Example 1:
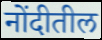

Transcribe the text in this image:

नोंदीतील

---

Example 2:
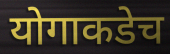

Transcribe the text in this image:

योगाकडेच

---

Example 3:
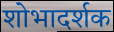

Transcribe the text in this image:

शोभादर्शक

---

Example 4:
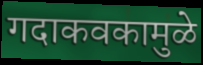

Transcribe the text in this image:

गदाकवकामुळे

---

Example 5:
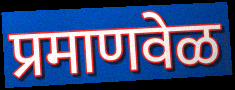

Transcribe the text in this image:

प्रमाणवेळ